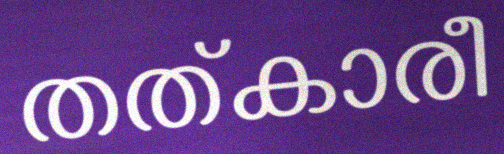
തത്കാരീ